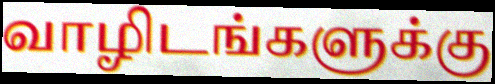
வாழிடங்களுக்கு